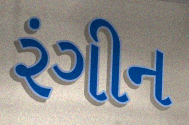
રંગીન